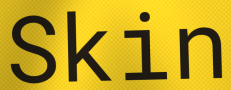
Skin